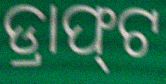
ଡ୍ରାଫ୍‌ଟ